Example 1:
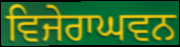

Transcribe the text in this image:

ਵਿਜੇਰਾਘਵਨ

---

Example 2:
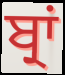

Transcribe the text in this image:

ਬ੍ਰਾਂ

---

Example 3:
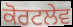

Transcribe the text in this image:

ਕੋਰਟਲੇਵ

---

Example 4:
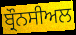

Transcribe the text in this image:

ਬ੍ਰੌਨਸੀਅਲ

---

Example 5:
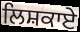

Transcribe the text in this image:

ਲਿਸ਼ਕਾਏ